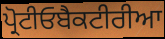
ਪ੍ਰੋਟੀਓਬੈਕਟੀਰੀਆ